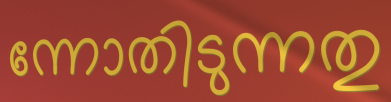
ന്നോതിടുന്നതു